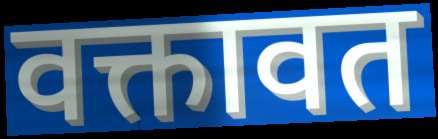
वक्तावत